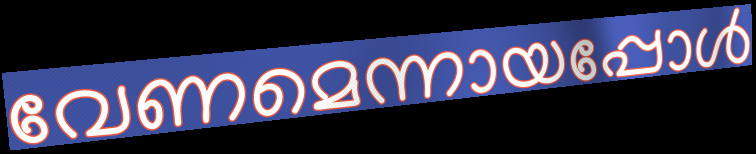
വേണമെന്നായപ്പോൾ